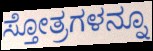
ಸ್ತೋತ್ರಗಳನ್ನೂ